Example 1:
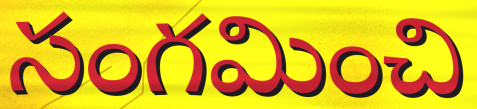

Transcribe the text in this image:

సంగమించి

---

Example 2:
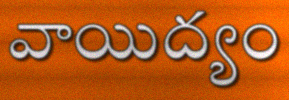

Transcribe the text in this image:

వాయిద్యం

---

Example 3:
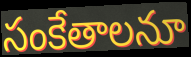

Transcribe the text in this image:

సంకేతాలనూ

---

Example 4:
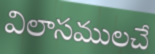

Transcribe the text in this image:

విలాసములచే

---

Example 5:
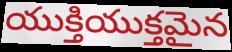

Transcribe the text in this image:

యుక్తియుక్తమైన